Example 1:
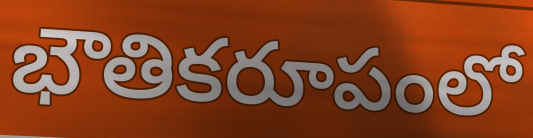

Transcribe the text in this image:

భౌతికరూపంలో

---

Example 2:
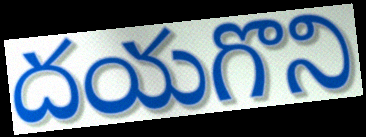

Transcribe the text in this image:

దయగొని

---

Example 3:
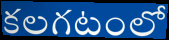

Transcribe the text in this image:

కలగటంలో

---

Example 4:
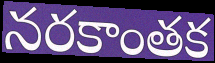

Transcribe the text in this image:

నరకాంతక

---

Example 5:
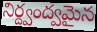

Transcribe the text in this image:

నిర్ద్వంద్వమైన